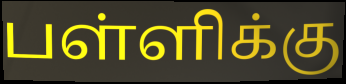
பள்ளிக்கு